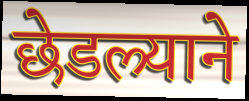
छेडल्याने